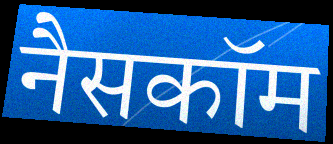
नैसकॉम